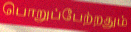
பொறுப்பேற்றதும்